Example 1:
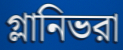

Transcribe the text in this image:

গ্লানিভরা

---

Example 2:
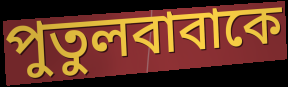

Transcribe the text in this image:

পুতুলবাবাকে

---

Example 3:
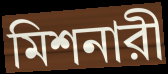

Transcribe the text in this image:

মিশনারী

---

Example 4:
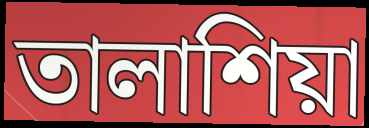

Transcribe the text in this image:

তালাশিয়া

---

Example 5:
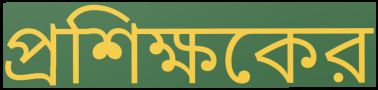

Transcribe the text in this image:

প্রশিক্ষকের